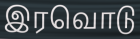
இரவொடு